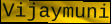
Vijaymuni